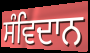
ਸੰਵਿਦਾਨ